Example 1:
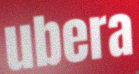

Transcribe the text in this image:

ubera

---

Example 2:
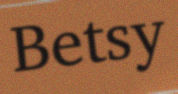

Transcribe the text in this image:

Betsy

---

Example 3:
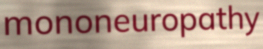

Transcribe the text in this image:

mononeuropathy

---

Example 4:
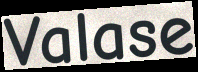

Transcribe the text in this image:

Valase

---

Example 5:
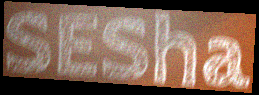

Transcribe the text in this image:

SESha